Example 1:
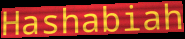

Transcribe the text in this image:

Hashabiah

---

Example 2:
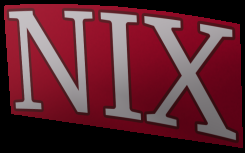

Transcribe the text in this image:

NIX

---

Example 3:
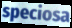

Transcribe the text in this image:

speciosa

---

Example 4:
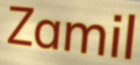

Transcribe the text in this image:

Zamil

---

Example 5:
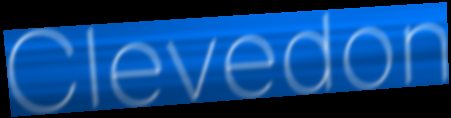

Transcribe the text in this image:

Clevedon